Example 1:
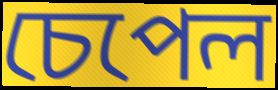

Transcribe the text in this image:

চেপেল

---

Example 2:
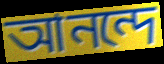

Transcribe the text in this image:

আনন্দে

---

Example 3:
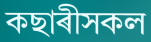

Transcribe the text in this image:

কছাৰীসকল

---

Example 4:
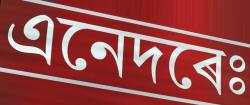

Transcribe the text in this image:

এনেদৰেঃ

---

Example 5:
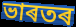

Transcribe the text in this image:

ভাৰতৰ